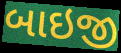
બાઇજી